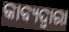
କାବ୍ୟଦ୍ୱାରା